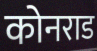
कोनराड